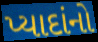
પ્યાદાંનો